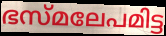
ഭസ്മലേപമിട്ട